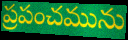
ప్రపంచమును